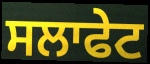
ਸਲਾਫੇਟ